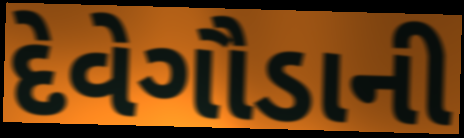
દેવેગૌડાની